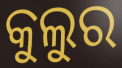
କୁଲୁର